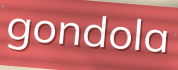
gondola